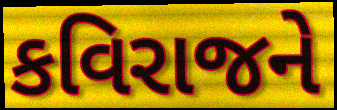
કવિરાજને